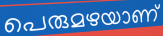
പെരുമഴയാണ്